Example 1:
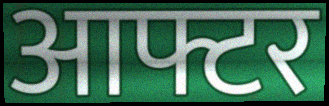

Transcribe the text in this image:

आफ्टर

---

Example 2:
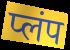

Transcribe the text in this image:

प्लंप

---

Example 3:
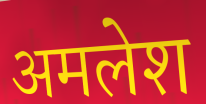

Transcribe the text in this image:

अमलेश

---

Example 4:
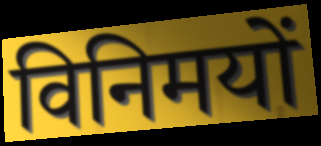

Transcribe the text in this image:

विनिमयों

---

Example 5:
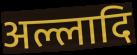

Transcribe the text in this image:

अल्लादि